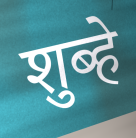
शुब्हे